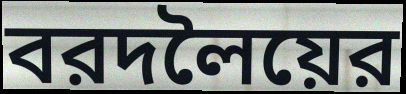
বরদলৈয়ের